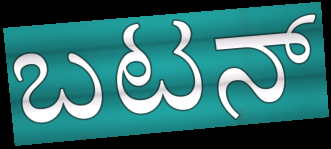
ಬಟನ್